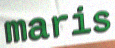
maris